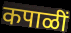
कपाळीं